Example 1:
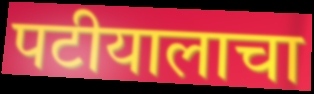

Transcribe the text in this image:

पटीयालाचा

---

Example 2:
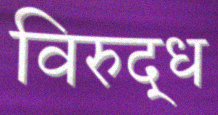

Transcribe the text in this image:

विरुद्ध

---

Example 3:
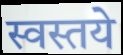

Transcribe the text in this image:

स्वस्तये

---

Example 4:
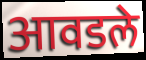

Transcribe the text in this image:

आवडले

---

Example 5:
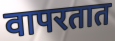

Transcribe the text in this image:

वापरतात